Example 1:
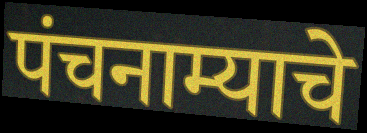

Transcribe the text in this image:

पंचनाम्याचे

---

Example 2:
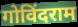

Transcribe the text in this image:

गोविंदराम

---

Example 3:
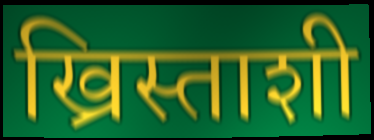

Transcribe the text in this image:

ख्रिस्ताशी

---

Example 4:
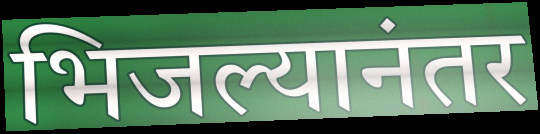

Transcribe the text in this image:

भिजल्यानंतर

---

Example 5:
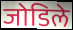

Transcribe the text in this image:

जोडिले